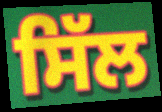
ਸਿੱਲ